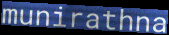
munirathna